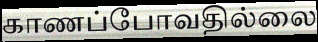
காணப்போவதில்லை